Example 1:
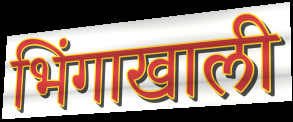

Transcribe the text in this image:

भिंगाखाली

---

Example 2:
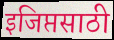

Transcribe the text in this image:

इजिप्तसाठी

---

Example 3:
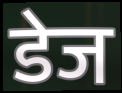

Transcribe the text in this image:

डेज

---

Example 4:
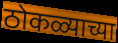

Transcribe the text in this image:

ठोकळ्याच्या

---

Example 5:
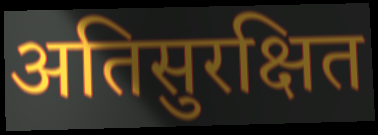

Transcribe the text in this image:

अतिसुरक्षित